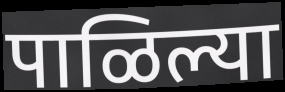
पाळिल्या